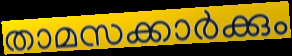
താമസക്കാർക്കും